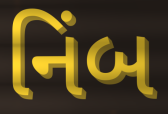
નિંબ